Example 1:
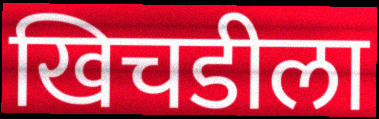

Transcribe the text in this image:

खिचडीला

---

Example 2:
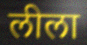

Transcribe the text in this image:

लीला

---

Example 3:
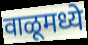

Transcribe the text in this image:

वाळूमध्ये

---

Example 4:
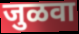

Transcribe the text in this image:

जुळवा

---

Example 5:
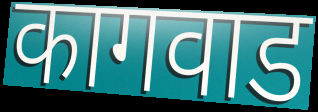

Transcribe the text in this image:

कागवाड